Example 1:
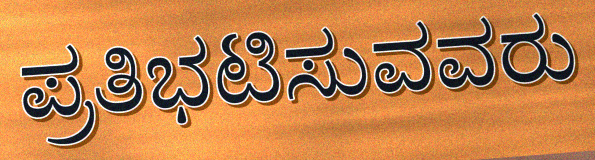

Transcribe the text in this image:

ಪ್ರತಿಭಟಿಸುವವರು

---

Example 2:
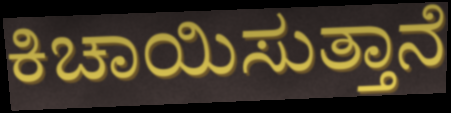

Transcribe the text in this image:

ಕಿಚಾಯಿಸುತ್ತಾನೆ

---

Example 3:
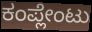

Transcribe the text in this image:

ಕಂಪ್ಲೇಂಟು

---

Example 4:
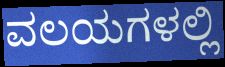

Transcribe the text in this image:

ವಲಯಗಳಲ್ಲಿ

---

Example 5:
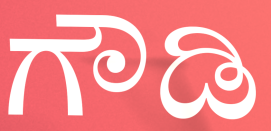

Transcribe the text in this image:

ಗೌಡಿ